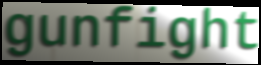
gunfight